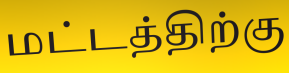
மட்டத்திற்கு